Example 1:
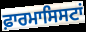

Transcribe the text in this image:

ਫ਼ਾਰਮਾਸਿਸਟਾਂ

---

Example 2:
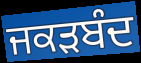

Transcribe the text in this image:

ਜਕੜਬੰਦ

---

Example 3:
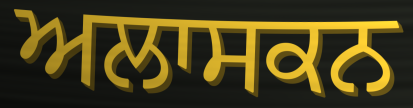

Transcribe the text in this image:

ਅਲਾਸਕਨ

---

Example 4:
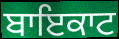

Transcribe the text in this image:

ਬਾਇਕਾਟ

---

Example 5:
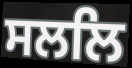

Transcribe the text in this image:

ਸਲਲਿ